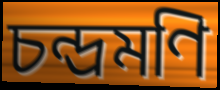
চন্দ্রমণি